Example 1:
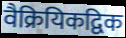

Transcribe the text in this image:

वैक्रियिकद्विक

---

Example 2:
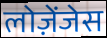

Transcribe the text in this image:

लोज़ेंजेस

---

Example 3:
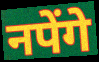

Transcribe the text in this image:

नपेंगे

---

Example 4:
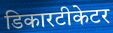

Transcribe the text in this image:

डिकारटीकेटर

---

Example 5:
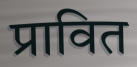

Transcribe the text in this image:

प्रावित